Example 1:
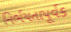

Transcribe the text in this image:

નિર્ભયતાપૂર્વક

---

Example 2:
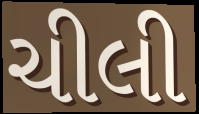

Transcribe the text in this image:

ચીલી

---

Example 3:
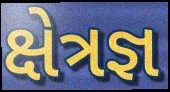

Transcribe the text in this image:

ક્ષેત્રજ્ઞ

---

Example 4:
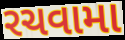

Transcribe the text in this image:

રચવામા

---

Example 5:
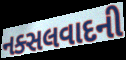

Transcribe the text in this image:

નક્સલવાદની